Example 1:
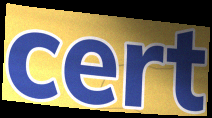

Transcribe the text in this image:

cert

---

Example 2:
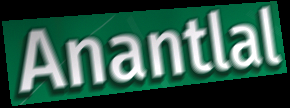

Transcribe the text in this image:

Anantlal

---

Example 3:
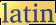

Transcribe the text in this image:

latin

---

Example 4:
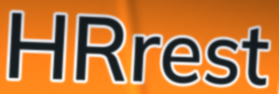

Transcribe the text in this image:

HRrest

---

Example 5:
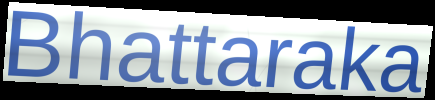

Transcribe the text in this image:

Bhattaraka